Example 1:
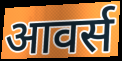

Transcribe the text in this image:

आवर्स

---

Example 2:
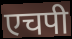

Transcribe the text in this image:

एचपी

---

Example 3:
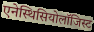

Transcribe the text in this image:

एनेस्थिसियोलॉजिस्ट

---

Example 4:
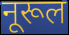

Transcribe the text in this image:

नूरूल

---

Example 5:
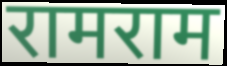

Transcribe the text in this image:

रामराम